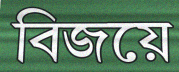
বিজয়ে